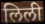
लिली